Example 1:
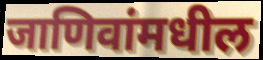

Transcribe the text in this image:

जाणिवांमधील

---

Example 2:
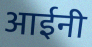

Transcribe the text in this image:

आईनी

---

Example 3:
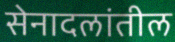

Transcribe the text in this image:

सेनादलांतील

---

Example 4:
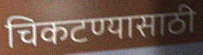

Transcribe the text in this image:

चिकटण्यासाठी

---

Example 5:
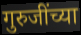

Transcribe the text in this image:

गुरुजींच्या